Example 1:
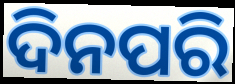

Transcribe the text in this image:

ଦିନପରି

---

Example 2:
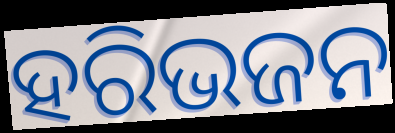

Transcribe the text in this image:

ହରିଭଜନ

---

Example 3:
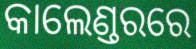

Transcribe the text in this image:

କାଲେଣ୍ଡରରେ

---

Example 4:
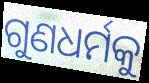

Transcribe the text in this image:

ଗୁଣଧର୍ମକୁ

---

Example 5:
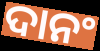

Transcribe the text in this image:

ଦାନଂ